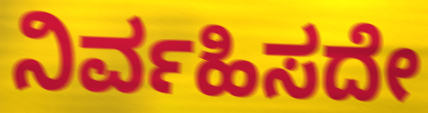
ನಿರ್ವಹಿಸದೇ